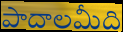
పాదాలమీది